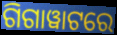
ଗିଗାୱାଟରେ